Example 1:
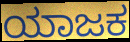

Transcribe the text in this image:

ಯಾಜಕ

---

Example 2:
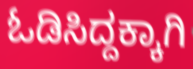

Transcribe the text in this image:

ಓಡಿಸಿದ್ದಕ್ಕಾಗಿ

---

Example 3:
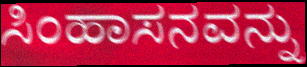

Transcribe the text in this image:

ಸಿಂಹಾಸನವನ್ನು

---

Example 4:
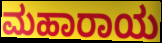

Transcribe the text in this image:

ಮಹಾರಾಯ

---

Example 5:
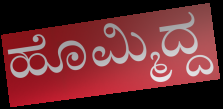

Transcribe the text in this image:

ಹೊಮ್ಮಿದ್ದ